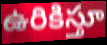
ఉరికిస్తూ